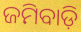
ଜମିବାଡ଼ି